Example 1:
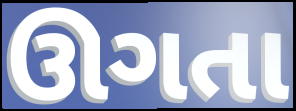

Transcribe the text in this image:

ઊગતા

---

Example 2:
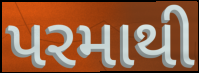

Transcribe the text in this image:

પરમાથી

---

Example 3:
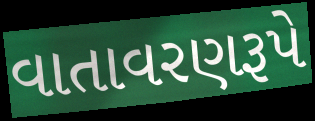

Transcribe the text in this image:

વાતાવરણરૂપે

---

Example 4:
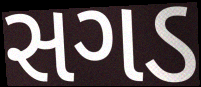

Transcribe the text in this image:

સગડ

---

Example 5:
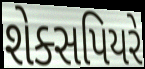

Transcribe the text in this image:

શેક્સપિયરે